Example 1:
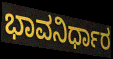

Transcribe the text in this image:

ಭಾವನಿರ್ಧಾರ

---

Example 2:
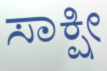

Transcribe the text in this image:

ಸಾಕ್ಷೀ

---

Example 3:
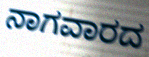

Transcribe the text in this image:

ನಾಗವಾರದ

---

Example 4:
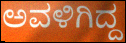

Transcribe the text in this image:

ಅವಳಿಗಿದ್ದ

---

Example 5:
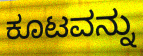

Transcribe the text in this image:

ಕೂಟವನ್ನು